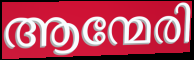
ആന്മേരി